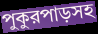
পুকুরপাড়সহ